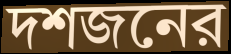
দশজনের